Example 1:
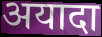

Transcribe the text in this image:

अयादा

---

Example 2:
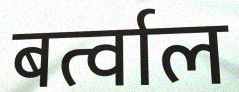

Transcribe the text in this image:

बर्त्वाल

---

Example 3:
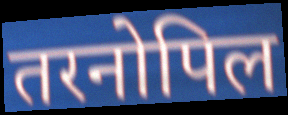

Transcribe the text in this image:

तरनोपिल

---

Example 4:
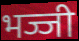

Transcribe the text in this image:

भज्जी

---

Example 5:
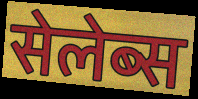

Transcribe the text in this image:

सेलेब्स